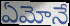
ఏమోనే